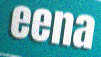
eena